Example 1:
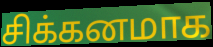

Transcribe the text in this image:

சிக்கனமாக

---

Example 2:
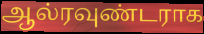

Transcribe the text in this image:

ஆல்ரவுண்டராக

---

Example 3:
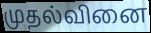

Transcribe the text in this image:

முதல்வினை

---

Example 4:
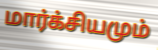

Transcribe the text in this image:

மார்க்சியமும்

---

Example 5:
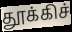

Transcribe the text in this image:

தூக்கிச்